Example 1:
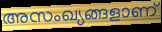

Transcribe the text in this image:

അസംഖ്യങ്ങളാണ്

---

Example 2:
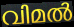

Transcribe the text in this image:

വിമൽ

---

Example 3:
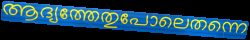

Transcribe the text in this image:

ആദ്യത്തേതുപോലെതന്നെ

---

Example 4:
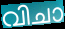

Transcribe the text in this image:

വിചാ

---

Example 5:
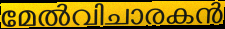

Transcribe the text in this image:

മേൽവിചാരകൻ